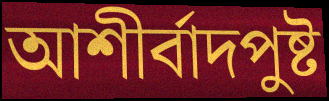
আশীর্বাদপুষ্ট